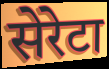
सेरेटा